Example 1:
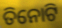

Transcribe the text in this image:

ତିନୋଟି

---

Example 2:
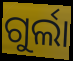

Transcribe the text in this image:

ଗୁର୍ଲା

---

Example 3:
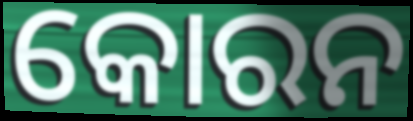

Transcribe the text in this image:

କୋରନ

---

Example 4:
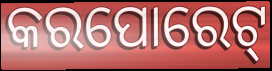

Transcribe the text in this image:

କରପୋରେଟ୍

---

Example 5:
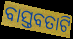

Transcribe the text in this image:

ବାସ୍ତବତାଟି